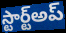
స్టార్ట్అప్